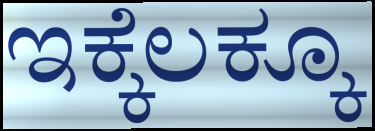
ಇಕ್ಕೆಲಕ್ಕೂ